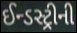
ઈન્ડસ્ટ્રીની